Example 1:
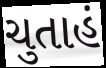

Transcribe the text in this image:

ચુતાહં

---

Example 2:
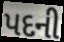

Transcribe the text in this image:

પદની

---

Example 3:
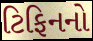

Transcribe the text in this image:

ટિફિનનો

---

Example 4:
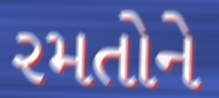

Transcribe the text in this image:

રમતોને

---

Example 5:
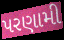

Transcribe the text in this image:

પરણામી